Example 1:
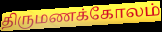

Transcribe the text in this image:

திருமணக்கோலம்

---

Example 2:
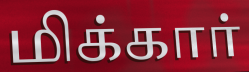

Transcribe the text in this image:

மிக்கார்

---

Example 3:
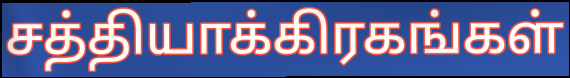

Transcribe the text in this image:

சத்தியாக்கிரகங்கள்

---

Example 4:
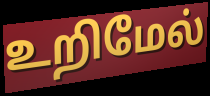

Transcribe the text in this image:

உறிமேல்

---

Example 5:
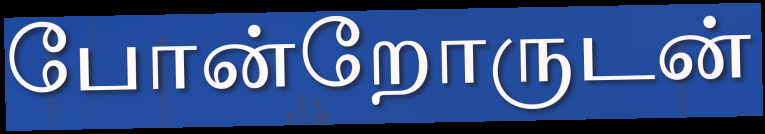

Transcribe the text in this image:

போன்றோருடன்